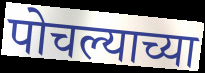
पोचल्याच्या